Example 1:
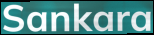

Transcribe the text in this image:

Sankara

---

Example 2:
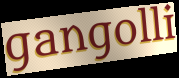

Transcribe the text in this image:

gangolli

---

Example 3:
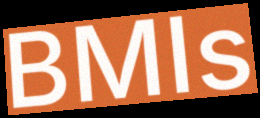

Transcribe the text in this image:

BMIs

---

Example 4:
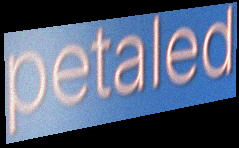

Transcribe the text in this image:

petaled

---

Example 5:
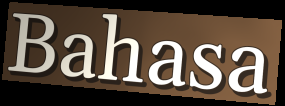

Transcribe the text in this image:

Bahasa